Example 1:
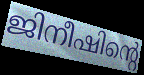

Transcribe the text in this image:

ജിനീഷിന്റെ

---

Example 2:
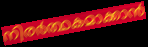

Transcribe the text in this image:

നിരർത്ഥകമാക്കാൻ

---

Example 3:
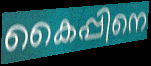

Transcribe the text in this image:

കൈപ്പിനെ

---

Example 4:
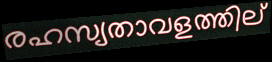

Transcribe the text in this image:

രഹസ്യതാവളത്തില്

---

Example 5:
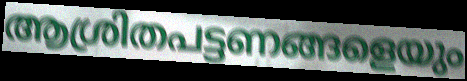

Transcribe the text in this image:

ആശ്രിതപട്ടണങ്ങളെയും